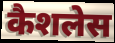
कैशलेस